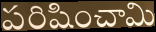
పరిషించామి